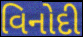
વિનોદી